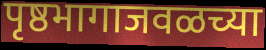
पृष्ठभागाजवळच्या